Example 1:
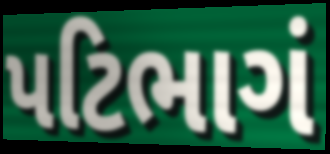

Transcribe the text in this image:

પટિભાગં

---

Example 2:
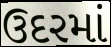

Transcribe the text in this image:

ઉદરમાં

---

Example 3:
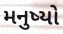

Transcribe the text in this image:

મનુષ્યો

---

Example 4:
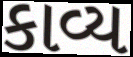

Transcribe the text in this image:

કાવ્ય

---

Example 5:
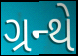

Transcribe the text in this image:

ગ્રન્થે